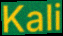
Kali